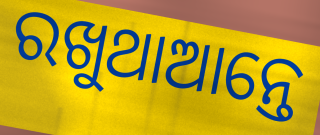
ରଖୁଥାଆନ୍ତେ